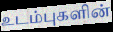
உடம்புகளின்